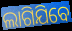
ଲାଗିଯିବେ